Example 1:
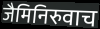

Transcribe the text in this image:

जैमिनिरुवाच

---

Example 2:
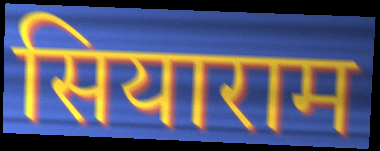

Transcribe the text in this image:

सियाराम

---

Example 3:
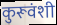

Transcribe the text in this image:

कुरूवंशी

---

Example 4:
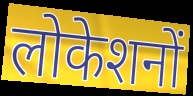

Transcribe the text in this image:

लोकेशनों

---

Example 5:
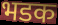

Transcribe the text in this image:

भडक